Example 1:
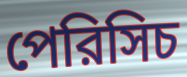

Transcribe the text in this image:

পেরিসিচ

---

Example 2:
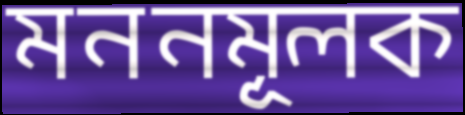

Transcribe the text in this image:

মননমূলক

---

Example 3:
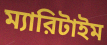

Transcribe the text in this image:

ম্যারিটাইম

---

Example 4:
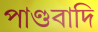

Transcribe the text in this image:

পাণ্ডবাদি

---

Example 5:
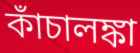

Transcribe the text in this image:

কাঁচালঙ্কা